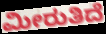
ಮೀರುತಿದೆ